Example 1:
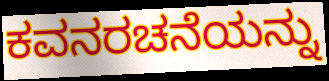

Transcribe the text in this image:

ಕವನರಚನೆಯನ್ನು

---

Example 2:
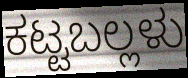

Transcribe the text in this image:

ಕಟ್ಟಬಲ್ಲಳು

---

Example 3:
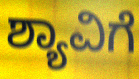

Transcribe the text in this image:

ಶ್ಯಾವಿಗೆ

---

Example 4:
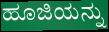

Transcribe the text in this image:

ಹೂಜಿಯನ್ನು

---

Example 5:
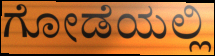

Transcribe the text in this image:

ಗೋಡೆಯಲ್ಲಿ